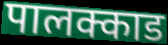
पालक्काड